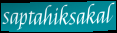
saptahiksakal